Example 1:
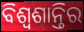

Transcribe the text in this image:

ବିଶ୍ୱଶାନ୍ତିର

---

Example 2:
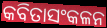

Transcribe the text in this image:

କବିତାସଂକଳନ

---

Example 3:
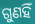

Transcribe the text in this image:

ଗୁଣହିଁ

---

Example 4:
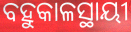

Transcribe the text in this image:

ବହୁକାଳସ୍ଥାୟୀ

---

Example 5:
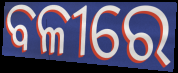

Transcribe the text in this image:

ବଳୀରେ